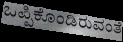
ಒಪ್ಪಿಕೊಂಡಿರುವಂತೆ